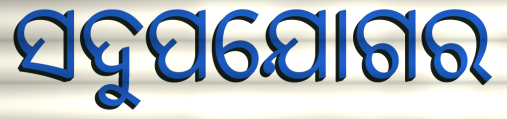
ସଦୁପଯୋଗର